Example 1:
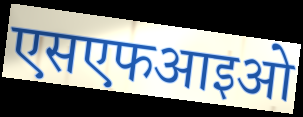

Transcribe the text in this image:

एसएफआइओ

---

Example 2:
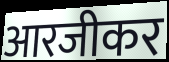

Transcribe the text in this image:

आरजीकर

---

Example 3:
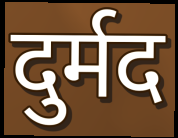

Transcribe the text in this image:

दुर्मद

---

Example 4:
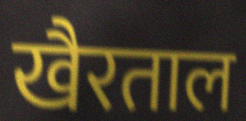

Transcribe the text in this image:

खैरताल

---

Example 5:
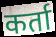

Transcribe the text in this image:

कर्ता